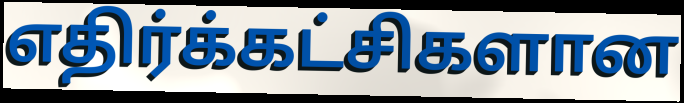
எதிர்க்கட்சிகளான